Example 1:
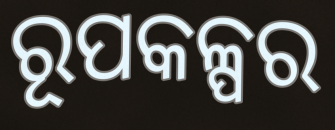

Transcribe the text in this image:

ରୂପକଳ୍ପର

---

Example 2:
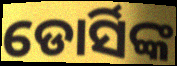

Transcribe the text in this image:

ଡୋର୍ସିଙ୍କ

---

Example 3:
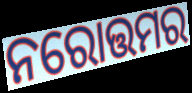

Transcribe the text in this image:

ନରୋତ୍ତମର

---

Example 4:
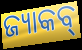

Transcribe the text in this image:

ଜ୍ୟାକବ୍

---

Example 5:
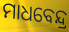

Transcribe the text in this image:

ମାଧବେନ୍ଦ୍ର